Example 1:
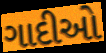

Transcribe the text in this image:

ગાદીઓ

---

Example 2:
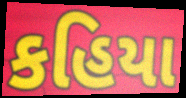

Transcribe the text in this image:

કહિયા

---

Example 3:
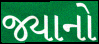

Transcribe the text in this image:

જ્યાનો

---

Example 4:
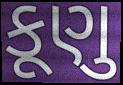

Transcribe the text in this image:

કૂણુ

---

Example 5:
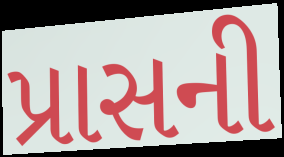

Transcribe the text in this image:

પ્રાસની